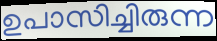
ഉപാസിച്ചിരുന്ന